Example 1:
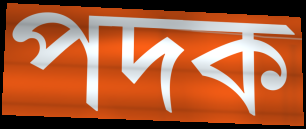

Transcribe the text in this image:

পদক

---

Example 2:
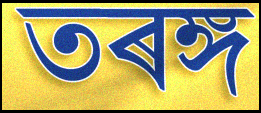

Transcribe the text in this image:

তৰঙ্গ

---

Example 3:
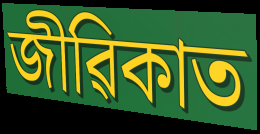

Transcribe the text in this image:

জীৱিকাত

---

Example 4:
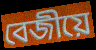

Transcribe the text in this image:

বেজীয়ে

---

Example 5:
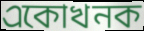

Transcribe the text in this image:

একোখনক